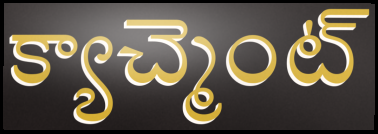
క్యాచ్మెంట్